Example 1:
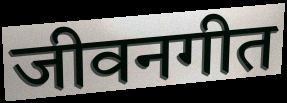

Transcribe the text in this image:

जीवनगीत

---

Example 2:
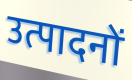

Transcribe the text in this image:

उत्पादनों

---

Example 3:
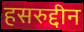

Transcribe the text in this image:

हसरुद्दीन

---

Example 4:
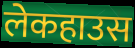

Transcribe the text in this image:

लेकहाउस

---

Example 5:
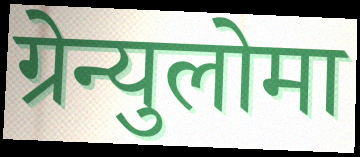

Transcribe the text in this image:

ग्रेन्युलोमा